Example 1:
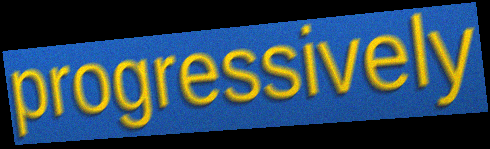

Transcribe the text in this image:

progressively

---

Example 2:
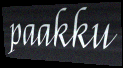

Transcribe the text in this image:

paakku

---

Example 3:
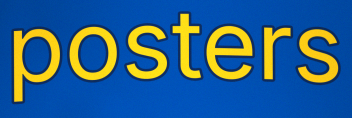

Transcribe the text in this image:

posters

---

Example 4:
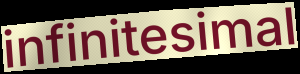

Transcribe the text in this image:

infinitesimal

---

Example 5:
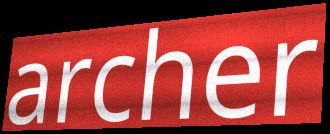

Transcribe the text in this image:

archer